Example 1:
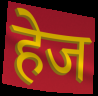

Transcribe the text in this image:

हेज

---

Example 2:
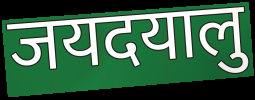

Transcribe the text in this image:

जयदयालु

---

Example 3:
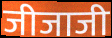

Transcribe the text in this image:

जीजाजी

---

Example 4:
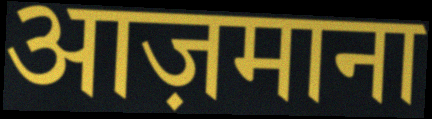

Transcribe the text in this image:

आज़माना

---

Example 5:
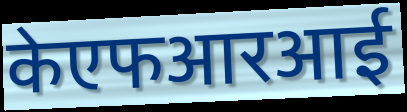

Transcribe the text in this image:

केएफआरआई